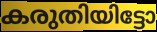
കരുതിയിട്ടോ